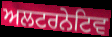
ਅਲਟਰਨੇਟਿਵ